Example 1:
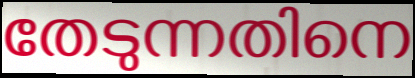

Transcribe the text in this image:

തേടുന്നതിനെ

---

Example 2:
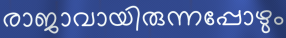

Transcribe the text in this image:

രാജാവായിരുന്നപ്പോഴും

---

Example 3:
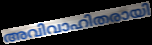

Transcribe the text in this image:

അവിവാഹിതരായി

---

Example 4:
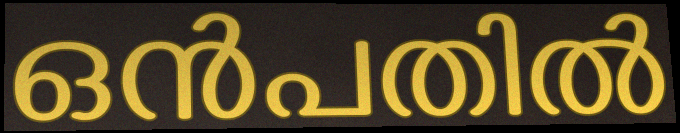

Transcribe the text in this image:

ഒൻപതിൽ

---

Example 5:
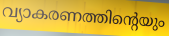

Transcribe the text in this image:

വ്യാകരണത്തിന്റെയും